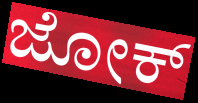
ಜೋಕ್